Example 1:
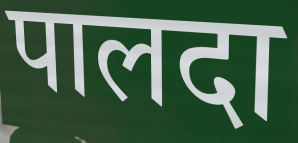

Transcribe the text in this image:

पालदा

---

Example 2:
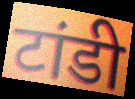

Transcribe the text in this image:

टांडी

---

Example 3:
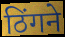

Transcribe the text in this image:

ठिंगने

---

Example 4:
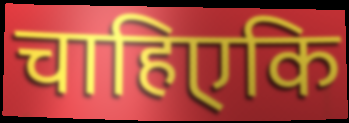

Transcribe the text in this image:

चाहिएकि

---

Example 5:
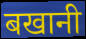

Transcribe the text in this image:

बखानी